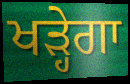
ਖੜ੍ਹੇਗਾ